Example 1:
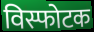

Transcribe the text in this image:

विस्फोटक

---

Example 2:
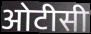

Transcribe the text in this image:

ओटीसी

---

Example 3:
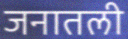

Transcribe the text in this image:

जनातली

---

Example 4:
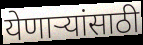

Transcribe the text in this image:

येणाऱ्यांसाठी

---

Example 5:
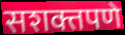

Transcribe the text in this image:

सशक्तपणे